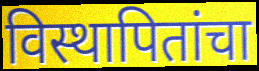
विस्थापितांचा